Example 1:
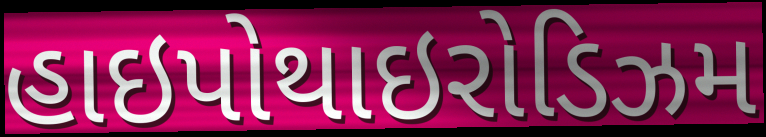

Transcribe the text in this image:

હાઇપોથાઇરોડિઝમ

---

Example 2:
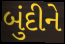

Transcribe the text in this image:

બુંદીને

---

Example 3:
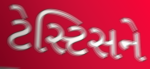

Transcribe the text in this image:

ટેસ્ટિસને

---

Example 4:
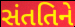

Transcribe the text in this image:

સંતતિને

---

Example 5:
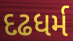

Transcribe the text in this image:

દઢધર્મ